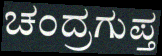
ಚಂದ್ರಗುಪ್ತ